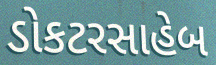
ડોકટરસાહેબ